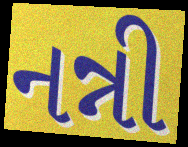
નન્ની